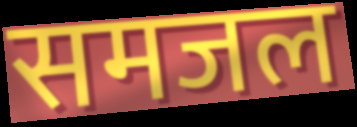
समजल